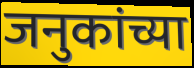
जनुकांच्या